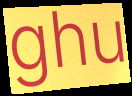
ghu